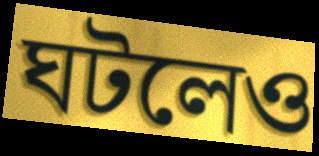
ঘটলেও